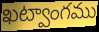
ఖట్వాంగము